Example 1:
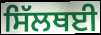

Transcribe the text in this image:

ਸਿੱਲਥਈ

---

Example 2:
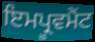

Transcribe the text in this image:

ਇਮਪ੍ਰੂਵਮੈਂਟ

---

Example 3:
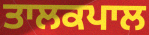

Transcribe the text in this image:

ਤਾਲਕਪਾਲ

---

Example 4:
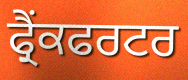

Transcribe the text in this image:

ਫ੍ਰੈਂਕਫਰਟਰ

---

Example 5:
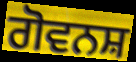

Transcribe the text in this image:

ਗੋਵਨਸ਼